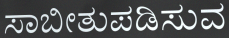
ಸಾಬೀತುಪಡಿಸುವ